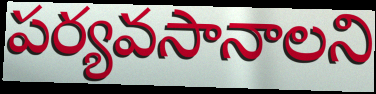
పర్యవసానాలని